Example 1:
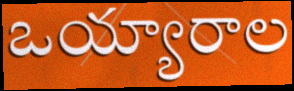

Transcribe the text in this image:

ఒయ్యారాల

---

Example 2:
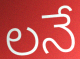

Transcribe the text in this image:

లనే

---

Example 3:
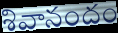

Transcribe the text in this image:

శివానందం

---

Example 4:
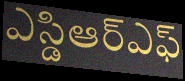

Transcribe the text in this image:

ఎస్డిఆర్ఎఫ్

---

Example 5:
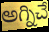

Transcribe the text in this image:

అగ్నిచే